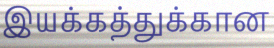
இயக்கத்துக்கான